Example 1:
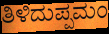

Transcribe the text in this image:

ತಿಳಿದುಪ್ಪಮಂ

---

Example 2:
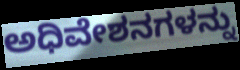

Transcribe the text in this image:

ಅಧಿವೇಶನಗಳನ್ನು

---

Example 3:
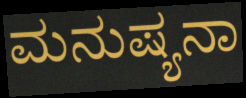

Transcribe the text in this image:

ಮನುಷ್ಯನಾ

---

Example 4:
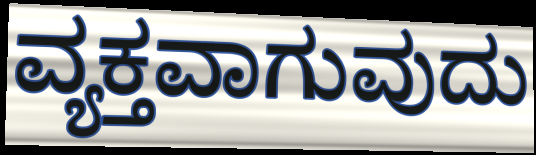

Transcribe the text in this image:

ವ್ಯಕ್ತವಾಗುವುದು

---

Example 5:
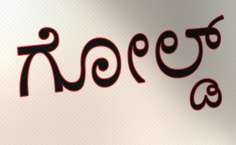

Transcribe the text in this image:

ಗೋಲ್ಡ್